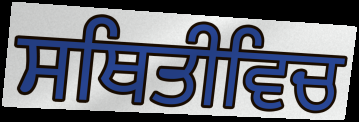
ਸਥਿਤੀਵਿਚ